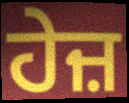
ਹੇਜ਼